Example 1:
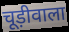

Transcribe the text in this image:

चूड़ीवाला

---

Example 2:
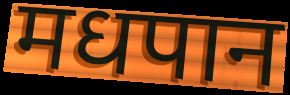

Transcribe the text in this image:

मधपान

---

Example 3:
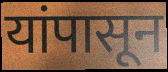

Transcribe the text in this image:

यांपासून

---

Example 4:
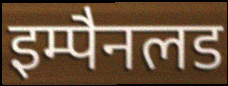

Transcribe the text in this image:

इम्पैनलड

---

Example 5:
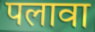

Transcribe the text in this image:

पलावा